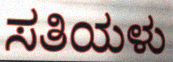
ಸತಿಯಳು